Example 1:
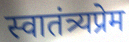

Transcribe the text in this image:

स्वातंत्र्यप्रेम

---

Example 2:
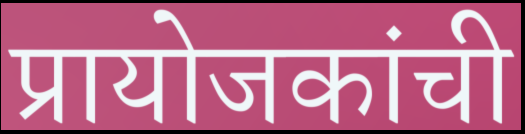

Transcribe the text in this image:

प्रायोजकांची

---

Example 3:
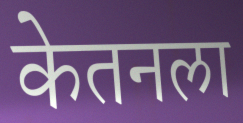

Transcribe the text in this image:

केतनला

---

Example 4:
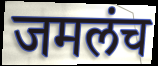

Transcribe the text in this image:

जमलंच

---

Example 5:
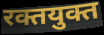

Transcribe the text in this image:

रक्तयुक्त